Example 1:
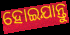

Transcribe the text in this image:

ହୋଇଯାନ୍ତୁ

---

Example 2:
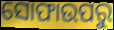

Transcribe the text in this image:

ସୋଫାଉପରୁ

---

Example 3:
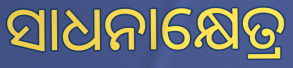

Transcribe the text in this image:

ସାଧନାକ୍ଷେତ୍ର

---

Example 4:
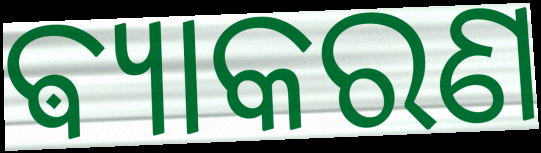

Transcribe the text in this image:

ଵ୍ଯାକରଣ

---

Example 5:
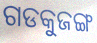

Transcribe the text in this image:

ଗଡକୁଜଙ୍ଗ